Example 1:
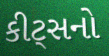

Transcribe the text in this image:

કીટ્સનો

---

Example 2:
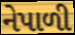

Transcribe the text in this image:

નેપાળી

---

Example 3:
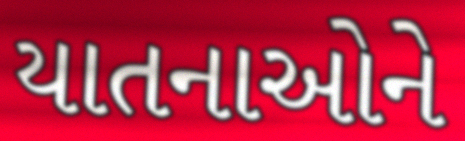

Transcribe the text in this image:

યાતનાઓને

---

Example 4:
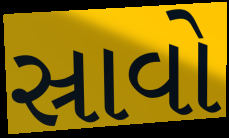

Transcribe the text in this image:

સ્રાવો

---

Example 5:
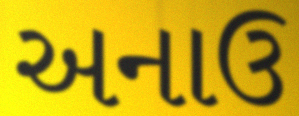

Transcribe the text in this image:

અનાઉ